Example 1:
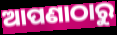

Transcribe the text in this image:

ଆପଣାଠାରୁ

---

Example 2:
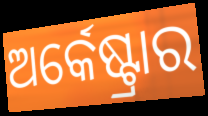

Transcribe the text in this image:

ଅର୍କେଷ୍ଟ୍ରାର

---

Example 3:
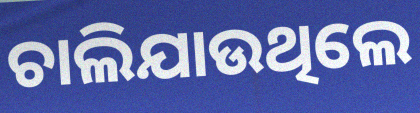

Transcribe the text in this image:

ଚାଲିଯାଉଥିଲେ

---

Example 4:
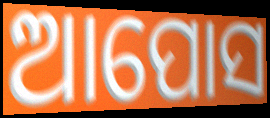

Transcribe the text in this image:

ଆପୋସ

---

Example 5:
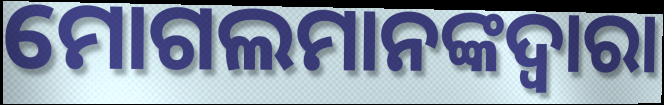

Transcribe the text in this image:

ମୋଗଲମାନଙ୍କଦ୍ୱାରା